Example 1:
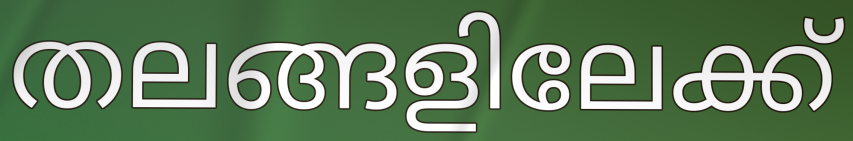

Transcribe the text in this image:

തലങ്ങളിലേക്ക്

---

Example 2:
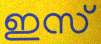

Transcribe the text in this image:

ഇസ്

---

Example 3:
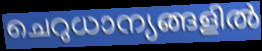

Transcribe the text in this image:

ചെറുധാന്യങ്ങളിൽ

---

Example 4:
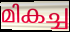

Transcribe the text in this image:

മികച്ച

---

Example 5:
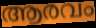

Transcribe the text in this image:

ആരവം